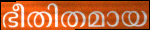
ഭീതിതമായ